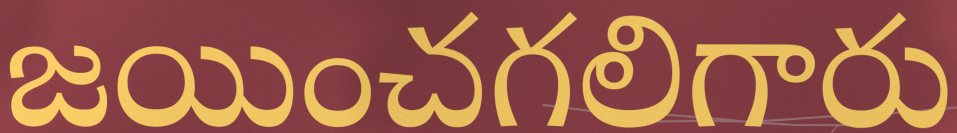
జయించగలిగారు